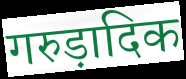
गरुड़ादिक